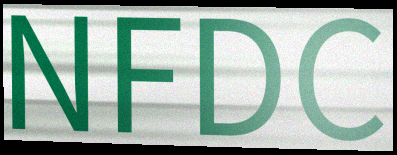
NFDC